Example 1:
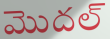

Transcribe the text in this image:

మొదల్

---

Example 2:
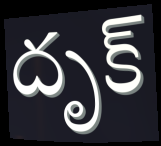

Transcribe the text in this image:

దృక్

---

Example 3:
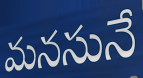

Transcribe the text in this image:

మనసునే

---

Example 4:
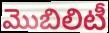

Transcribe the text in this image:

మొబిలిటీ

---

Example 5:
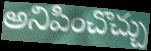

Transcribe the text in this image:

అనిపించొచ్చు